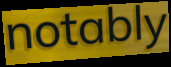
notably